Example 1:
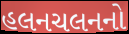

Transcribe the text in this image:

હલનચલનનો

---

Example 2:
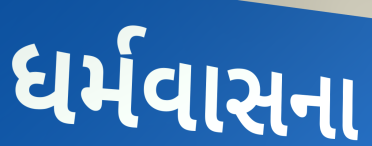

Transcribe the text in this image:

ધર્મવાસના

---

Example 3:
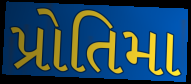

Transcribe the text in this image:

પ્રોતિમા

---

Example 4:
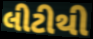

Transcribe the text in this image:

લીટીથી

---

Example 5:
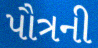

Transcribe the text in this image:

પૌત્રની